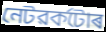
নেটৱৰ্কটোৰ